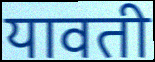
यावती